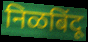
निळबिंदू